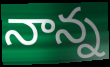
నాన్న